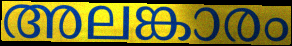
അലങ്കാരം